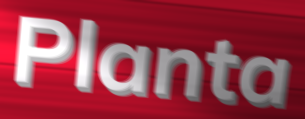
Planta